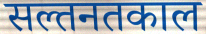
सल्तनतकाल